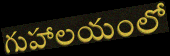
గుహాలయంలో